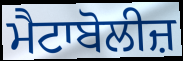
ਮੈਟਾਬੋਲੀਜ਼